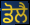
ਡੋਲੈ